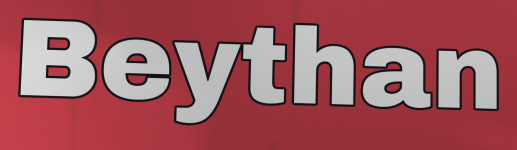
Beythan